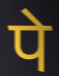
पे